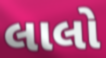
લાલો